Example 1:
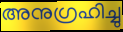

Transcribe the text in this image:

അനുഗ്രഹിച്ചു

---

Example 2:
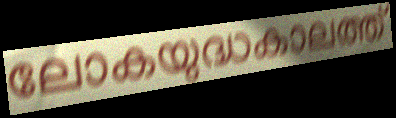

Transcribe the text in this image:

ലോകയുദ്ധകാലത്ത്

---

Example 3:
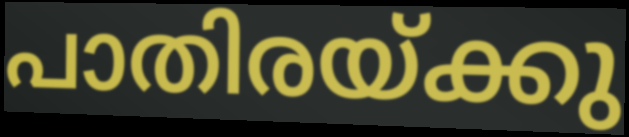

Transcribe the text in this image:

പാതിരയ്ക്കു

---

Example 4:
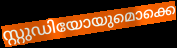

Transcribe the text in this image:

സ്റ്റുഡിയോയുമൊക്കെ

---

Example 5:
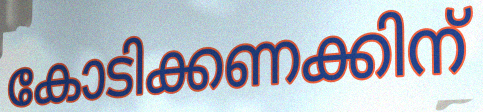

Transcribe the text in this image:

കോടിക്കണക്കിന്